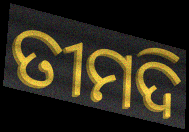
ତୀମଦି